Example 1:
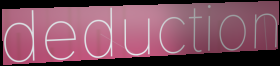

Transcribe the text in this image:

deduction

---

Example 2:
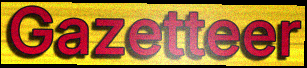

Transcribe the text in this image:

Gazetteer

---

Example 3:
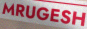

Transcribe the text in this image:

MRUGESH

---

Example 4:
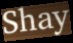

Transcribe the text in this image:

Shay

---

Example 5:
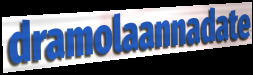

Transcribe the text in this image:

dramolaannadate